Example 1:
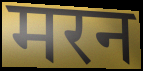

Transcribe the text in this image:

मरन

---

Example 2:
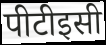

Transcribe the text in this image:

पीटीइसी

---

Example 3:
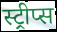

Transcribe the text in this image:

स्ट्रीप्स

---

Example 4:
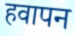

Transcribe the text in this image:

हवापन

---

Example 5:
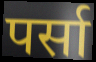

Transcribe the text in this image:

पर्सा